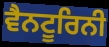
ਵੈਨਟੂਰਿਨੀ